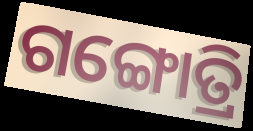
ଗଙ୍ଗୋତ୍ରି